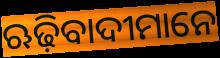
ଋଢ଼ିବାଦୀମାନେ